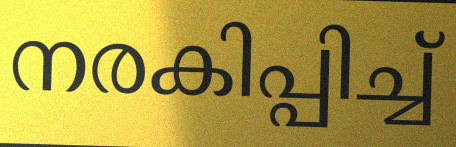
നരകിപ്പിച്ച്